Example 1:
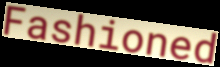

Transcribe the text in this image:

Fashioned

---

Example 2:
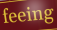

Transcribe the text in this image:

feeing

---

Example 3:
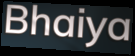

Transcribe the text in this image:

Bhaiya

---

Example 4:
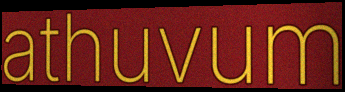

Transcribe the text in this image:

athuvum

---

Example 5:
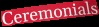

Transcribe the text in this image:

Ceremonials